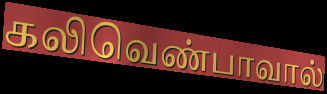
கலிவெண்பாவால்